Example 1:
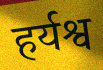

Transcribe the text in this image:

हर्यश्व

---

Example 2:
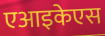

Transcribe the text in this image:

एआइकेएस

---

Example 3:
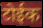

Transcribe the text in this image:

टोईक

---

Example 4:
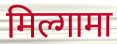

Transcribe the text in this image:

मिल्गामा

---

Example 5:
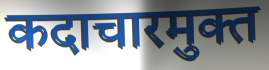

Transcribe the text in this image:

कदाचारमुक्त